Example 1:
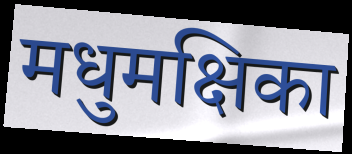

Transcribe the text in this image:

मधुमक्षिका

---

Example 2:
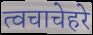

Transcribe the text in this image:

त्वचाचेहरे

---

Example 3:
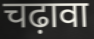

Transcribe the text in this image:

चढ़ावा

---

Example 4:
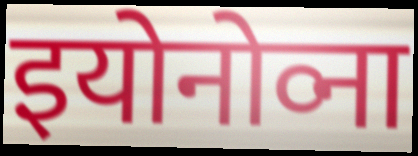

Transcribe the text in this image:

इयोनोव्ना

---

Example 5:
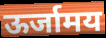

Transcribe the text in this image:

ऊर्जामय